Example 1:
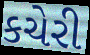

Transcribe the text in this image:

કચેરી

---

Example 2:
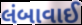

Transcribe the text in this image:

લંબાવાઈ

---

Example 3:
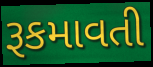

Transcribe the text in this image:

રૂકમાવતી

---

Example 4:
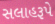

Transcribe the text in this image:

સલાહરૂપે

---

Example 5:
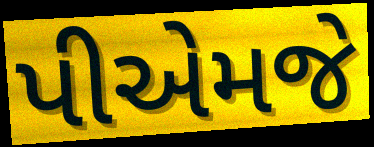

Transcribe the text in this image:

પીએમજે